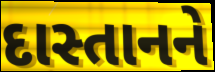
દાસ્તાનને